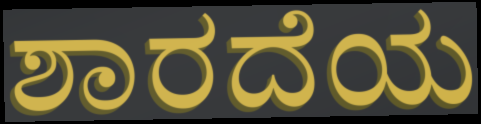
ಶಾರದೆಯ